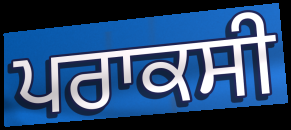
ਪਰਾਕਸੀ